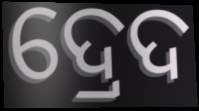
ଦ୍ରେଦ